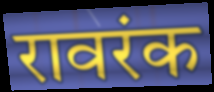
रावरंक